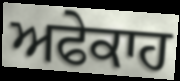
ਅਫੇਕਾਹ